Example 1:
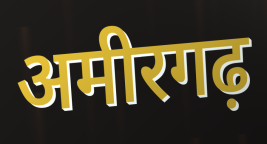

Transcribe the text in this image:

अमीरगढ़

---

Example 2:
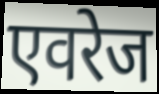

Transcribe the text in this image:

एवरेज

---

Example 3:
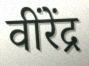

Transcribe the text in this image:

वींरेंद्र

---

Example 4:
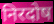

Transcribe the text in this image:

निरदोष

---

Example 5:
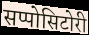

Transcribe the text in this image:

सप्पोसिटोरी